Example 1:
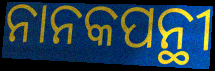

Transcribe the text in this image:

ନାନକପନ୍ଥୀ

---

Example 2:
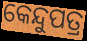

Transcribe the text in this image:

କେନ୍ଦୁପତ୍ର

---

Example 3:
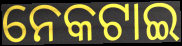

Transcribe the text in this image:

ନେକଟାଇ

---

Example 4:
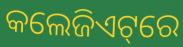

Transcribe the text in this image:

କଲେଜିଏଟ୍‌ରେ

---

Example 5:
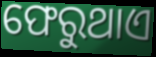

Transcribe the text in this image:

ଫେରୁଥାଏ